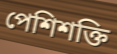
পেশিশক্তি